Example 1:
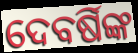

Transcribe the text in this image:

ଦେବର୍ଷିଙ୍କ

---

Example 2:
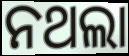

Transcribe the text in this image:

ନଥଲା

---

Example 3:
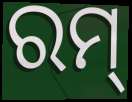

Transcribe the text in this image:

ରମ୍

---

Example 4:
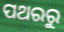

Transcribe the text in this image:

ପଥରରୁ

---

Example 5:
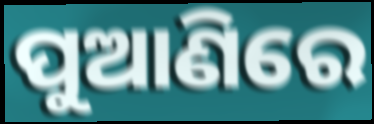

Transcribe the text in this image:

ପୁଆଣିରେ